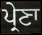
ਪ੍ਰੇਣਾ